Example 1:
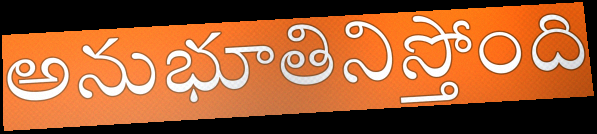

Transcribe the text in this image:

అనుభూతినిస్తోంది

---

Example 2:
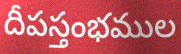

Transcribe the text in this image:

దీపస్తంభముల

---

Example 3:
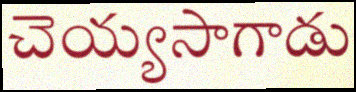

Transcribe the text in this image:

చెయ్యసాగాడు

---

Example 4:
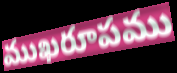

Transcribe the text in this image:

ముఖరూపము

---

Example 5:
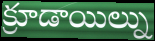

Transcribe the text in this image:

క్రూడాయిల్ను